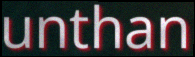
unthan